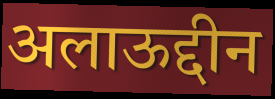
अलाऊद्दीन